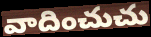
వాదించుచు